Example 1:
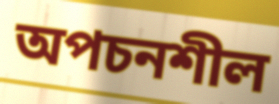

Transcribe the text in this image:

অপচনশীল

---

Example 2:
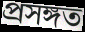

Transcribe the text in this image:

প্রসঙ্গত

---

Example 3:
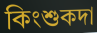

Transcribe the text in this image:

কিংশুকদা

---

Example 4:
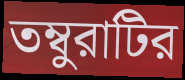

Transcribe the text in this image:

তম্বুরাটির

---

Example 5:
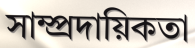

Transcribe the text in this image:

সাম্প্রদায়িকতা